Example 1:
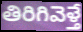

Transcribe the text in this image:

తిరిగివెళ్తే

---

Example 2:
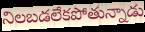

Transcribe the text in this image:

నిలబడలేకపోతున్నాడు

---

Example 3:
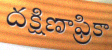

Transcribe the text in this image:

దక్షిణాఫ్రికా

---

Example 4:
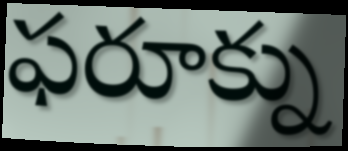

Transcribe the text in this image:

ఫరూక్ను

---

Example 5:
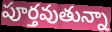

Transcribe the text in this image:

పూర్తవుతున్నా